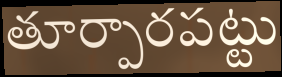
తూర్పారపట్టు